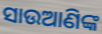
ସାଉଆଣିଙ୍କ